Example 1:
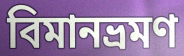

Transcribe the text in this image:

বিমানভ্রমণ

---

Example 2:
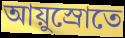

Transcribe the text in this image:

আয়ুস্রোতে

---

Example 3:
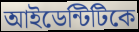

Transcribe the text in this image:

আইডেন্টিটিকে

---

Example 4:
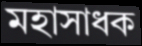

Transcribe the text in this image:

মহাসাধক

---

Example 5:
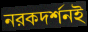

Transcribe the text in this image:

নরকদর্শনই